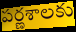
పర్ణశాలకు